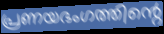
പ്രണയഭംഗത്തിന്റെ